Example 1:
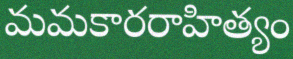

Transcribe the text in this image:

మమకారరాహిత్యం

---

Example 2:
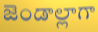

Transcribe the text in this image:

జెండాల్లాగా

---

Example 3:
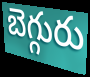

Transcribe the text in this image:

బెగ్గురు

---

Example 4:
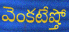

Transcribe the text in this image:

వెంకటేష్తో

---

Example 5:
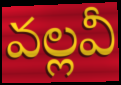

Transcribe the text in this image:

వల్లవీ